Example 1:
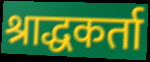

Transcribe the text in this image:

श्राद्धकर्ता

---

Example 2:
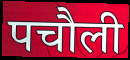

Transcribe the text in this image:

पचौली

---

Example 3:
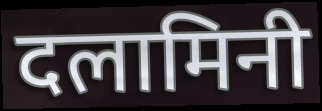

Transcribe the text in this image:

दलामिनी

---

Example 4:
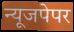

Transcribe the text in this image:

न्‍यूजपेपर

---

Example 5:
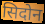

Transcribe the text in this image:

सिदोन